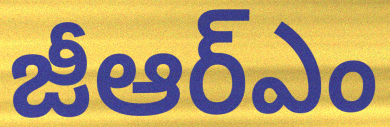
జీఆర్ఎం